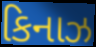
કિનાઝ